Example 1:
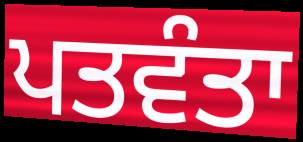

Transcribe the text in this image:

ਪਤਵੰਤਾ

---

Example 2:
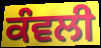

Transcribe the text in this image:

ਕੰਵਲੀ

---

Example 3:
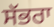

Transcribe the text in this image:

ਸੱਭਰਾ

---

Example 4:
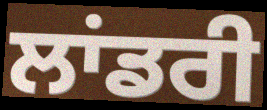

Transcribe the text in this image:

ਲਾਂਡਰੀ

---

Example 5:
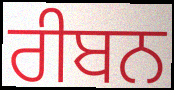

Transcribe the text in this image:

ਰੀਬਨ